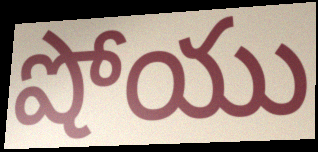
షోయు